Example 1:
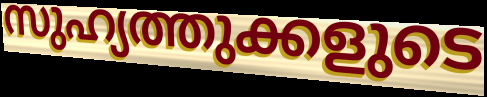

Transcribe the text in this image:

സുഹ്യത്തുക്കളുടെ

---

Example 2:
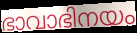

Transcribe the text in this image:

ഭാവാഭിനയം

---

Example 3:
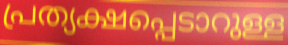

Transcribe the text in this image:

പ്രത്യക്ഷപ്പെടാറുള്ള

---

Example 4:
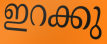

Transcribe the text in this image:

ഇറക്കു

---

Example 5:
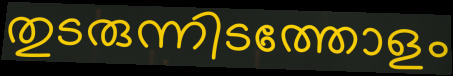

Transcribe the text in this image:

തുടരുന്നിടത്തോളം